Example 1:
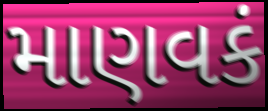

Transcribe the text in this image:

માણવકં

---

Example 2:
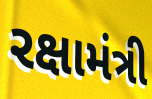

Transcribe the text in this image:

રક્ષામંત્રી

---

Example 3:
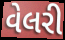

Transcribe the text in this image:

વેલરી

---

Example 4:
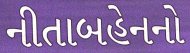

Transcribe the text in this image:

નીતાબહેનનો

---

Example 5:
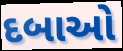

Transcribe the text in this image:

દબાઓ